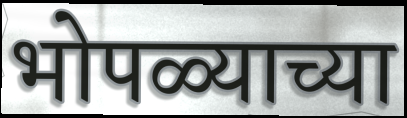
भोपळ्याच्या